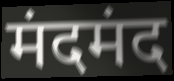
मंदमंद